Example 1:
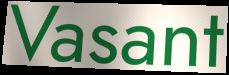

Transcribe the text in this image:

Vasant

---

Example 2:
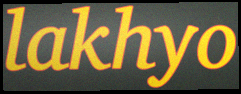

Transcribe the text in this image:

lakhyo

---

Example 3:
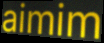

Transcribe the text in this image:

aimim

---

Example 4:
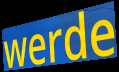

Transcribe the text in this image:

werde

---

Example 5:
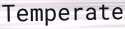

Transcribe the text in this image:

Temperate